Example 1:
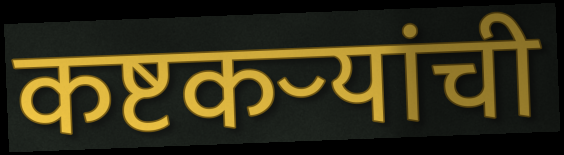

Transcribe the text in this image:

कष्टकऱ्यांची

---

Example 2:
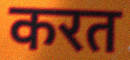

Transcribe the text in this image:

करत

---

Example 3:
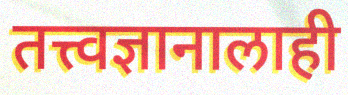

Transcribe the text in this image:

तत्त्वज्ञानालाही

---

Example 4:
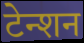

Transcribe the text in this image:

टेन्शन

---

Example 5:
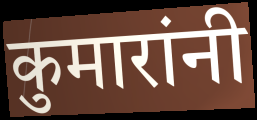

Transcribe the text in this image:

कुमारांनी